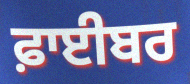
ਫ਼ਾਈਬਰ